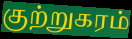
குற்றுகரம்